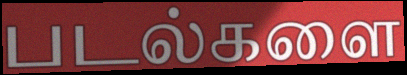
படல்களை